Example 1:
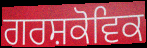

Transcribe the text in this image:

ਗਰਸ਼ਕੋਵਿਕ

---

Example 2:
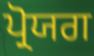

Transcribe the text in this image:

ਪ੍ਰੋਯਗ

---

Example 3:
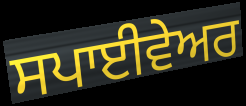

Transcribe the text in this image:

ਸਪਾਈਵੇਅਰ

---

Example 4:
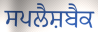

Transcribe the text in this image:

ਸਪਲੈਸ਼ਬੈਕ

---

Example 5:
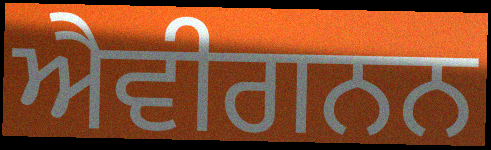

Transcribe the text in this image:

ਐਵੀਗਨਨ